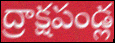
ద్రాక్షపండ్ల